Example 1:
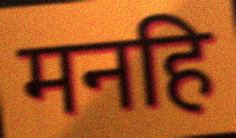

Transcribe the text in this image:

मनहि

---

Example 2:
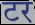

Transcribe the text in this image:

टर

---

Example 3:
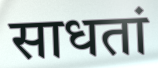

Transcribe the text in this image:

साधतां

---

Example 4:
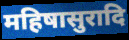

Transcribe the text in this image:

महिषासुरादि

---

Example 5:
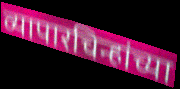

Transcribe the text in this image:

व्यापारचिन्हांच्या